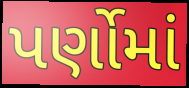
પર્ણોમાં